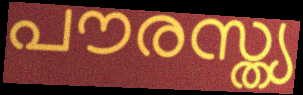
പൗരസ്ത്യ